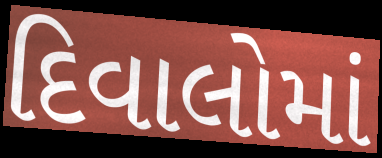
દિવાલોમાં